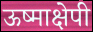
ऊष्माक्षेपी